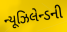
ન્યૂઝિલેન્ડની